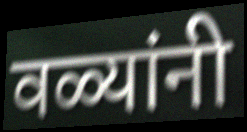
वळ्यांनी